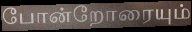
போன்றோரையும்